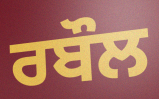
ਰਬੌਲ